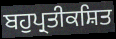
ਬਹੁਪ੍ਰਤੀਕਸ਼ਿਤ